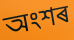
অংশৰ